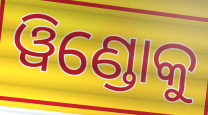
ୱିଣ୍ଡୋକୁ